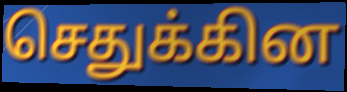
செதுக்கின